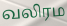
வலிரம